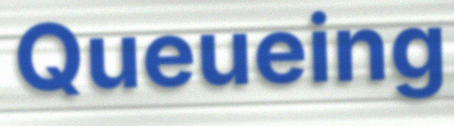
Queueing